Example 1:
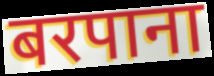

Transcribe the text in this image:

बरपाना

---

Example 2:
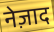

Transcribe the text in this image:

नेज़ाद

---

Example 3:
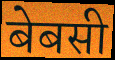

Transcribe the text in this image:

बेबसी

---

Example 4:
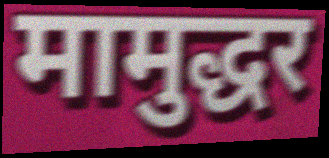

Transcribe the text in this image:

मामुद्धर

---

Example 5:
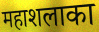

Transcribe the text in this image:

महाशलाका